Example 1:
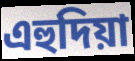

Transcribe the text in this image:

এহুদিয়া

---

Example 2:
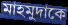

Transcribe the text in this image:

মাহমুদাকে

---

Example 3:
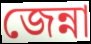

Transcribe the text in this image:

জেন্না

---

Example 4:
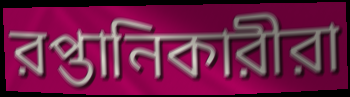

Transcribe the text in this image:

রপ্তানিকারীরা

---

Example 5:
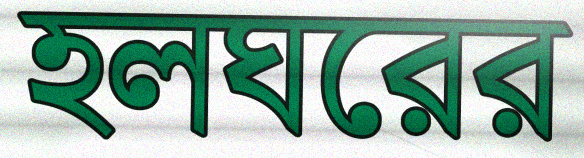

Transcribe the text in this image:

হলঘরের